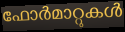
ഫോർമാറ്റുകൾ